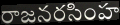
రాజనరసింహ